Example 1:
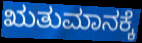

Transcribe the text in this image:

ಋತುಮಾನಕ್ಕೆ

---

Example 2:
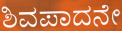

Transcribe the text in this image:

ಶಿವಪಾದನೇ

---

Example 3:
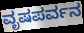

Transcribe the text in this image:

ವೃಷಪರ್ವನ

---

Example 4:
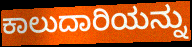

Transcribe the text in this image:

ಕಾಲುದಾರಿಯನ್ನು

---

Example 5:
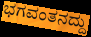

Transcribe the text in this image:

ಭಗವಂತನದ್ದು